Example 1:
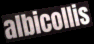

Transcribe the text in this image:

albicollis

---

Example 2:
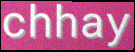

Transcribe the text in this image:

chhay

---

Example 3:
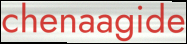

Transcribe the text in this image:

chenaagide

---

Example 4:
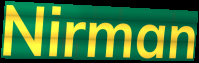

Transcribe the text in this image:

Nirman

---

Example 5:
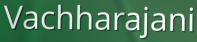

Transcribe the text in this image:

Vachharajani